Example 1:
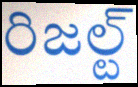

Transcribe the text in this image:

రిజల్ట్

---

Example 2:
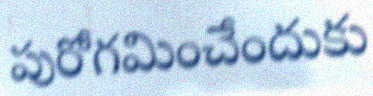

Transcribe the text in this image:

పురోగమించేందుకు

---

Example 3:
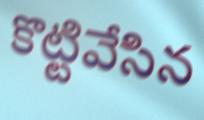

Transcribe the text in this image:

కొట్టివేసిన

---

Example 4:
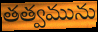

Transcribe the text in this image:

తత్వమును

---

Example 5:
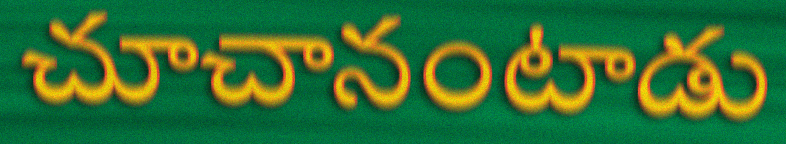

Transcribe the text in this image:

చూచానంటాడు